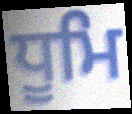
ਧੂਮਿ